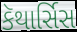
કૅથાર્સિસ